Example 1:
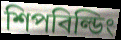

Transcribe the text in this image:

শিপবিল্ডিং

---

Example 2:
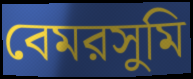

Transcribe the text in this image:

বেমরসুমি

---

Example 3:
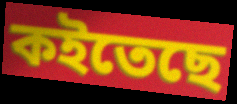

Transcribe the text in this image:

কইতেছে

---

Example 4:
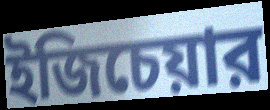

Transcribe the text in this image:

ইজিচেয়ার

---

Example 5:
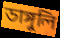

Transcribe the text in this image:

ডাঙ্গুলি